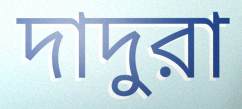
দাদুরা